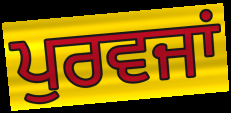
ਪੁਰਵਜਾਂ